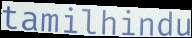
tamilhindu